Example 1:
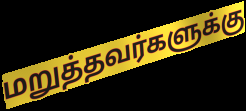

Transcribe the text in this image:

மறுத்தவர்களுக்கு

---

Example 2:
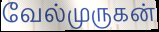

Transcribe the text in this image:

வேல்முருகன்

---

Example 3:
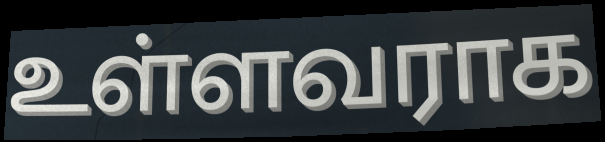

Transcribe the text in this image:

உள்ளவராக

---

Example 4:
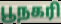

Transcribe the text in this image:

பூநகரி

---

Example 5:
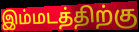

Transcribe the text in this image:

இம்மடத்திற்கு